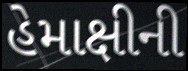
હેમાક્ષીની